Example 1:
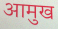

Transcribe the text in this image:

आमुख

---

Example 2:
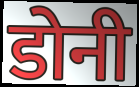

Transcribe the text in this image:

डोनी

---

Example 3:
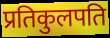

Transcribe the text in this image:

प्रतिकुलपति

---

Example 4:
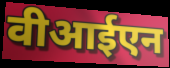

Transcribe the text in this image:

वीआईएन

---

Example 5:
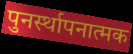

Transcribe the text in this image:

पुनर्स्थापनात्मक